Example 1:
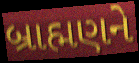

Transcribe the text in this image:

બ્રાહ્મણને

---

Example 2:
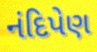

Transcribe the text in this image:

નંદિપેણ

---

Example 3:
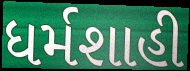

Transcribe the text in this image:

ધર્મશાહી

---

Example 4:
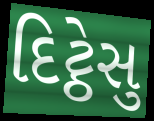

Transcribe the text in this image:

દિટ્ઠેસુ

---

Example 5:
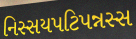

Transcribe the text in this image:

નિસ્સયપટિપન્નસ્સ